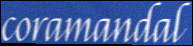
coramandal